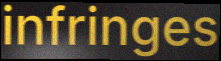
infringes